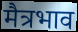
मैत्रभाव